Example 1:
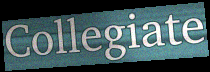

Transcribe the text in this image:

Collegiate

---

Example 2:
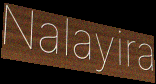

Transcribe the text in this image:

Nalayira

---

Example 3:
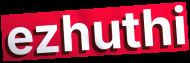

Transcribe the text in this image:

ezhuthi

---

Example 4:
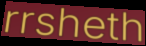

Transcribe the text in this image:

rrsheth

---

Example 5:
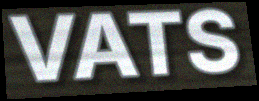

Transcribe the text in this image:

VATS